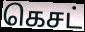
கெசட்